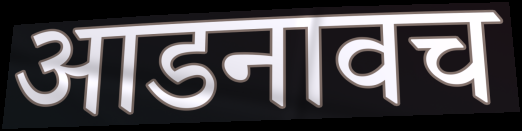
आडनावच